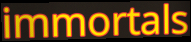
immortals